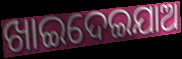
ଖାଇଦେଇଯାଅ